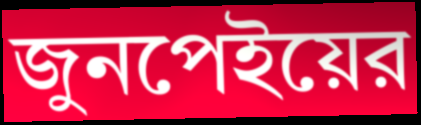
জুনপেইয়ের